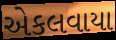
એકલવાયા